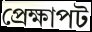
প্ৰেক্ষাপট